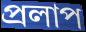
প্রলাপ